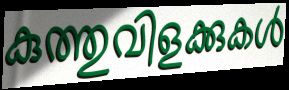
കുത്തുവിളക്കുകൾ